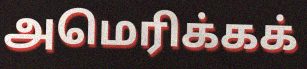
அமெரிக்கக்